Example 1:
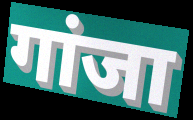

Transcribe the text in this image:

गांजा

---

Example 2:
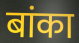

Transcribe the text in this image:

बांका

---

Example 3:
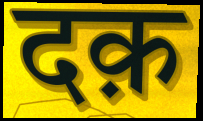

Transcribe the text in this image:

दक़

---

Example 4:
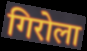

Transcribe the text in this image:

गिरोला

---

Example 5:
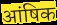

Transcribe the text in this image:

आंषिक